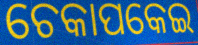
ଚେକାପକେଇ